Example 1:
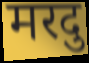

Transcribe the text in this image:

मरदु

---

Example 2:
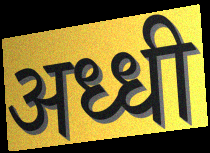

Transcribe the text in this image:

अध्धी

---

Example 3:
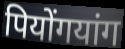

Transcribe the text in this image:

पियोंगयांग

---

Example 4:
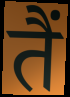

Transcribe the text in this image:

तैं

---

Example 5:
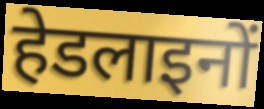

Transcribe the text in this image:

हेडलाइनों